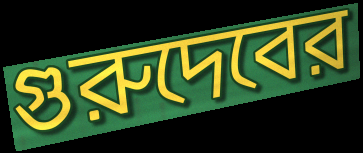
গুরুদেবের